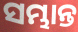
ସମ୍ଭାନ୍ତ